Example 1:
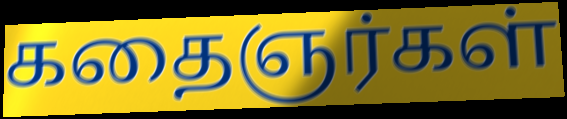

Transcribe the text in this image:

கதைஞர்கள்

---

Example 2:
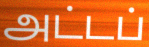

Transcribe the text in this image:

அட்டப்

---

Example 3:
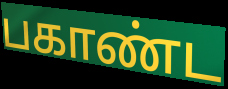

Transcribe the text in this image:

பகாண்ட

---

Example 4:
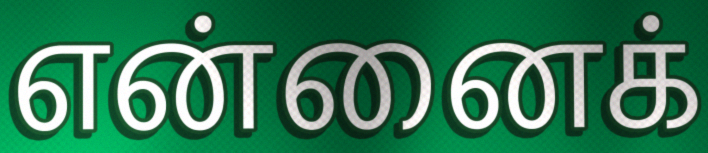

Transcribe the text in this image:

என்னைக்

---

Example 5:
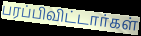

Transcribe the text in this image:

பரப்பிவிட்டார்கள்